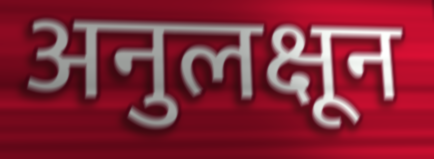
अनुलक्षून